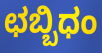
ಛಬ್ಬಿಧಂ